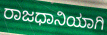
ರಾಜಧಾನಿಯಾಗಿ